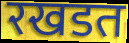
रखडत